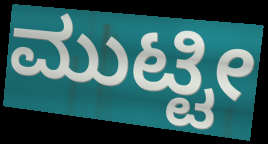
ಮುಟ್ಟೀ